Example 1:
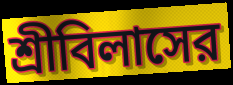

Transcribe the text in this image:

শ্রীবিলাসের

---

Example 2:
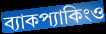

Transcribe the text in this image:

ব্যাকপ্যাকিংও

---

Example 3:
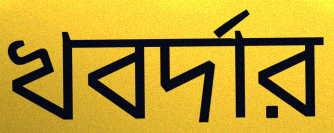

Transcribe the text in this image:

খবর্দার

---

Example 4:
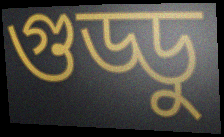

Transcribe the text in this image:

গুড্ডু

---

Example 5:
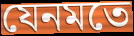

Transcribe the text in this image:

যেনমতে